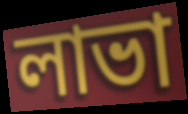
লাভা